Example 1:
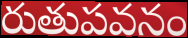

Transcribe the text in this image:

రుతుపవనం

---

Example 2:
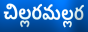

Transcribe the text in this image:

చిల్లరమల్లర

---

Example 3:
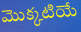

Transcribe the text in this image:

మొక్కటియే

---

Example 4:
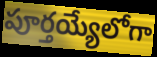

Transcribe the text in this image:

పూర్తయ్యేలోగా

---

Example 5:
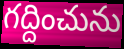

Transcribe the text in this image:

గద్దించును